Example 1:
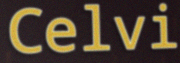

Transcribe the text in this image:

Celvi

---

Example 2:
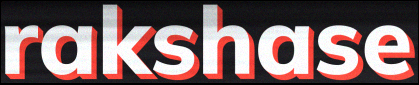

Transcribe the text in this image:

rakshase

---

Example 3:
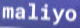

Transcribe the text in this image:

maliyo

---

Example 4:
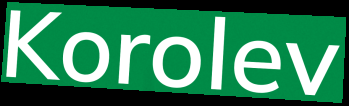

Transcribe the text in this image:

Korolev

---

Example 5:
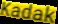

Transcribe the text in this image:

Kadak